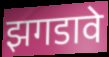
झगडावे